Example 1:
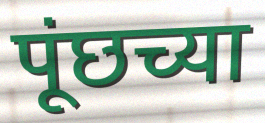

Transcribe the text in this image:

पूंछच्या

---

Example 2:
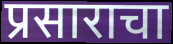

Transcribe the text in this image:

प्रसाराचा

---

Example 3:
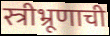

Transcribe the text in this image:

स्त्रीभ्रूणाची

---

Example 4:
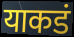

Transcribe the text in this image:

याकडं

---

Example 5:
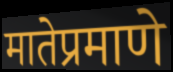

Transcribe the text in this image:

मातेप्रमाणे